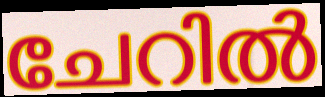
ചേറിൽ